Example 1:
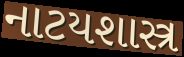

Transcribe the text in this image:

નાટયશાસ્ત્ર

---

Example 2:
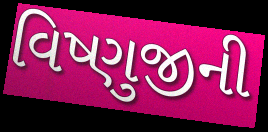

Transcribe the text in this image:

વિષ્ણુજીની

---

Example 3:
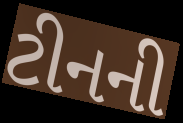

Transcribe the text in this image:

ટીનની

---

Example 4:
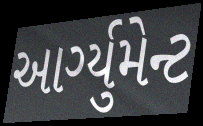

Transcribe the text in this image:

આર્ગ્યુમેન્ટ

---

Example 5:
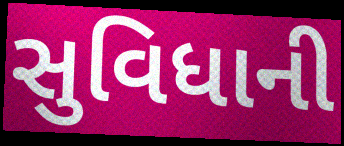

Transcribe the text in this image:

સુવિધાની